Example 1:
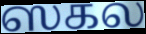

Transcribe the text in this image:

ஸகல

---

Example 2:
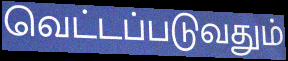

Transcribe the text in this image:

வெட்டப்படுவதும்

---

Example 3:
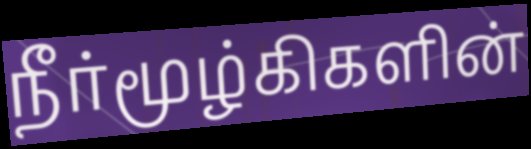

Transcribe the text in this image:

நீர்மூழ்கிகளின்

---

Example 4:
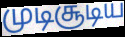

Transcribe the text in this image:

முடிசூடிய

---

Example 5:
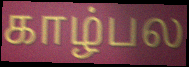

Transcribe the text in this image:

காழ்பல